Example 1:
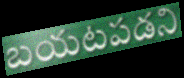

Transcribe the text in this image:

బయటపడని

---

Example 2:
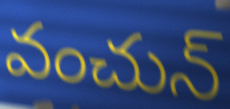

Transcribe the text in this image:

వంచున్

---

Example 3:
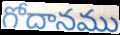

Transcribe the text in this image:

గోదానము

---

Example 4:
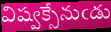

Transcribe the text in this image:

విష్వక్సేనుఁడు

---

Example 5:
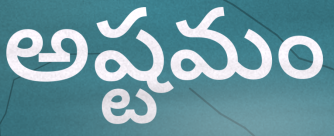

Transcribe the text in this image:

అష్టమం